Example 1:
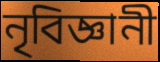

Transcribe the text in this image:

নৃবিজ্ঞানী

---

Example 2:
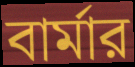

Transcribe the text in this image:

বার্মার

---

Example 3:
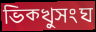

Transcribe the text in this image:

ভিক্খুসংঘ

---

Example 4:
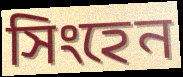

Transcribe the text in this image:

সিংহেন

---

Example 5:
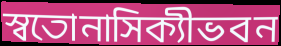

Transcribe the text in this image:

স্বতোনাসিক্যীভবন